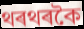
থৰথৰকৈ